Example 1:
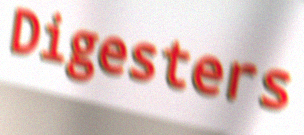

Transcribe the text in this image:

Digesters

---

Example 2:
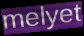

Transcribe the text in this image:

melyet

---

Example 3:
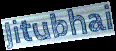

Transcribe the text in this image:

Jitubhai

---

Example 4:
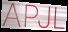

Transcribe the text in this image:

APJL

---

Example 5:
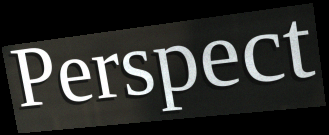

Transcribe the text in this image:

Perspect